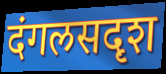
दंगलसदृश